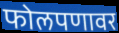
फोलपणावर